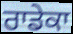
ਰਾਡੇਕਾ